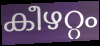
കീഴറ്റം